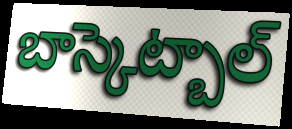
బాస్కెట్బాల్